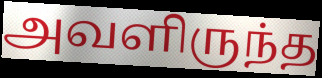
அவளிருந்த